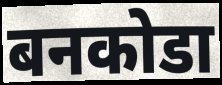
बनकोडा